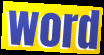
word